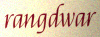
rangdwar